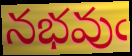
నభవుఁ